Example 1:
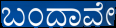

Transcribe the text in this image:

ಬಂದಾವೇ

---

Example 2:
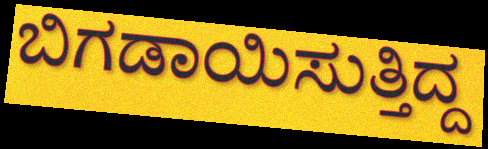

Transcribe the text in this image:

ಬಿಗಡಾಯಿಸುತ್ತಿದ್ದ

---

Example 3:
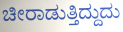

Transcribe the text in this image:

ಚೀರಾಡುತ್ತಿದ್ದುದು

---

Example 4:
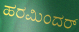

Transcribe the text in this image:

ಹರಮಿಂದರ್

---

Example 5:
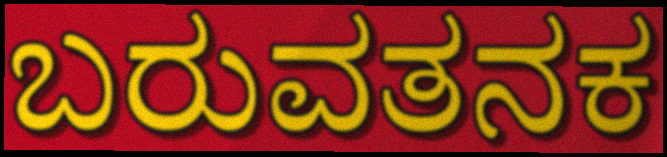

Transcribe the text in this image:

ಬರುವತನಕ